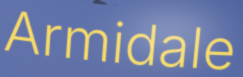
Armidale